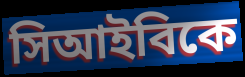
সিআইবিকে